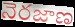
నెరజాణ